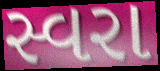
સ્વરા